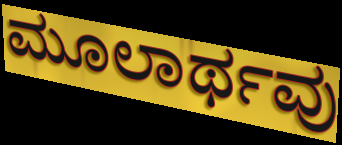
ಮೂಲಾರ್ಥವು